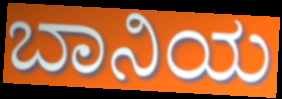
ಬಾನಿಯ